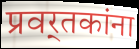
प्रवर्तकांना